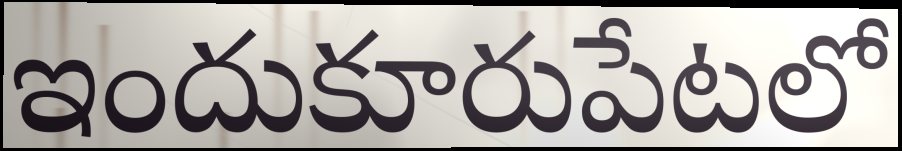
ఇందుకూరుపేటలో